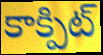
కాక్పిట్